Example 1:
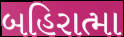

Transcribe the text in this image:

બહિરાત્મા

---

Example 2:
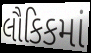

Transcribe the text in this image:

લૌકિકમાં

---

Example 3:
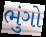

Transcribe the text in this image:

ભુંગો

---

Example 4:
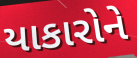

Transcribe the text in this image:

યાકારોને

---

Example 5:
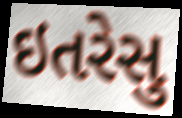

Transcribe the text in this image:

ઇતરેસુ